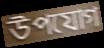
উপযোগ